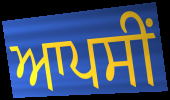
ਆਪਸੀਂ